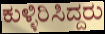
ಕುಳ್ಳಿರಿಸಿದ್ದರು